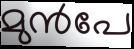
മുൻപേ